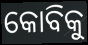
କୋବିକୁ